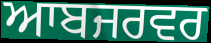
ਆਬਜਰਵਰ